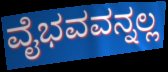
ವೈಭವವನ್ನಲ್ಲ